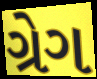
ગ્રેગ